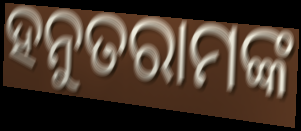
ହନୁତରାମଙ୍କ